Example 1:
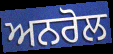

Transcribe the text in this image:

ਅਨਰੋਲ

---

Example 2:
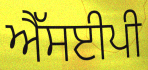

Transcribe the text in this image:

ਐੱਸਈਪੀ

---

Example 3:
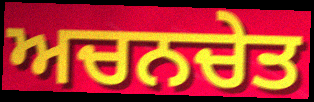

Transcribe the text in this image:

ਅਚਨਚੇਤ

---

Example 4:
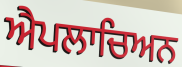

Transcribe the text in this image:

ਐਪਲਾਚਿਅਨ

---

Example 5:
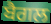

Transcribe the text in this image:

ਬੈਗਲ